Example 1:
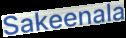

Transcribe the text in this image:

Sakeenala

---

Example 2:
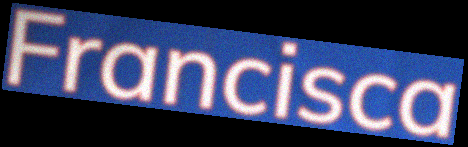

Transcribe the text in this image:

Francisca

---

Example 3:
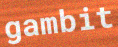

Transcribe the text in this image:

gambit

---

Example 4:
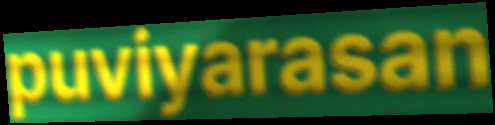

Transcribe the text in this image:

puviyarasan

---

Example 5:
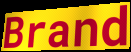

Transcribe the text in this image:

Brand